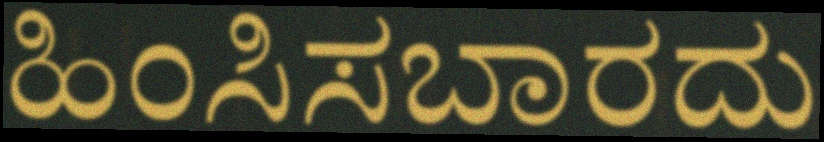
ಹಿಂಸಿಸಬಾರದು